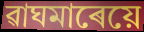
ৱাঘমাৰেয়ে